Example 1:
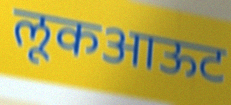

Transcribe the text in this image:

लूकआऊट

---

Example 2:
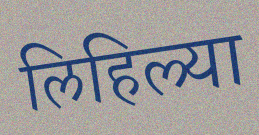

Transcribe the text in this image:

लिहिल्या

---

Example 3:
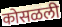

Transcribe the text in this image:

कोसळली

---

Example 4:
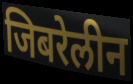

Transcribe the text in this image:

जिबरेलीन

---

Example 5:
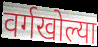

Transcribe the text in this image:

वर्गखोल्या